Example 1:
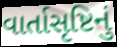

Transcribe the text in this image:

વાર્તાસૃષ્ટિનું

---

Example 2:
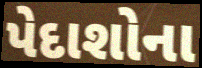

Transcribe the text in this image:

પેદાશોના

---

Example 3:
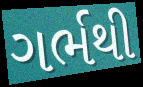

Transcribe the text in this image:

ગર્ભથી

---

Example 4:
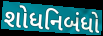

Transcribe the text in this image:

શોધનિબંધો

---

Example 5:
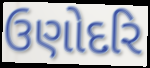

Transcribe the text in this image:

ઉણોદરિ